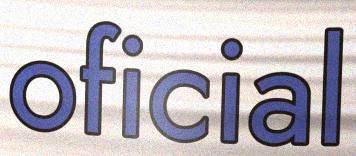
oficial